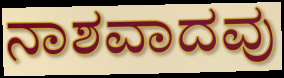
ನಾಶವಾದವು